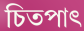
চিতপাৎ